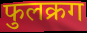
फुलक्रग